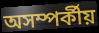
অসম্পর্কীয়